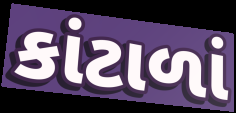
કાંટાળાં